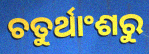
ଚତୁର୍ଥାଂଶରୁ